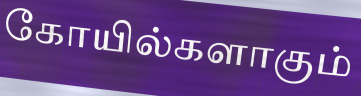
கோயில்களாகும்